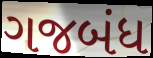
ગજબંધ